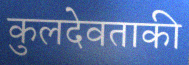
कुलदेवताकी